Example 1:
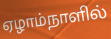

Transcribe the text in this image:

ஏழாம்நாளில்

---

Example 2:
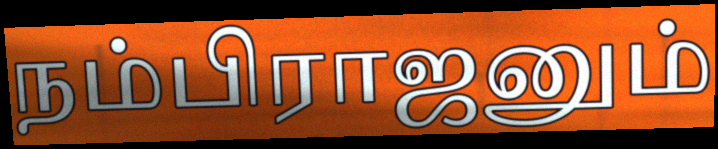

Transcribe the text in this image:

நம்பிராஜனும்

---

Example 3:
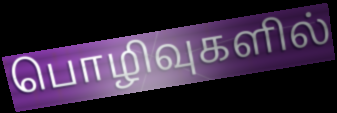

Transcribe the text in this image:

பொழிவுகளில்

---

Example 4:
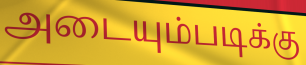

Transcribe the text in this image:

அடையும்படிக்கு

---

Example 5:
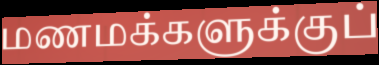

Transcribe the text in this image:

மணமக்களுக்குப்